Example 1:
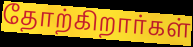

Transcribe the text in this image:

தோற்கிறார்கள்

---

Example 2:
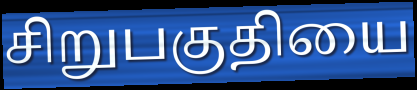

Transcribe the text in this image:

சிறுபகுதியை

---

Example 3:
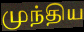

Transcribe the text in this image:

முந்திய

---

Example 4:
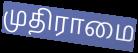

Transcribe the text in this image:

முதிராமை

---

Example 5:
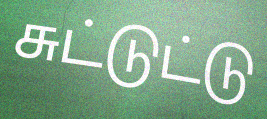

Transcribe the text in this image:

சுட்டுட்டு